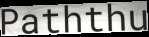
Paththu